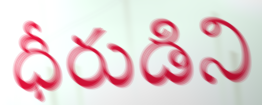
ధీరుడిని